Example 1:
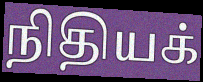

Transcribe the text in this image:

நிதியக்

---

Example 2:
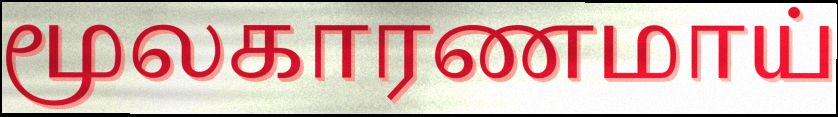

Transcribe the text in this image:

மூலகாரணமாய்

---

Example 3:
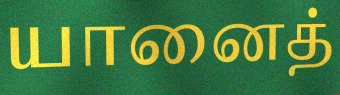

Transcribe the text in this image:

யானைத்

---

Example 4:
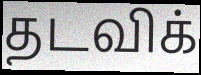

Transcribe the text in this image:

தடவிக்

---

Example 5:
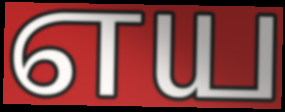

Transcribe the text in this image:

எய